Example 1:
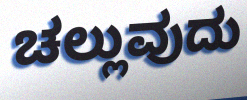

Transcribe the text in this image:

ಚಲ್ಲುವುದು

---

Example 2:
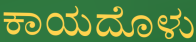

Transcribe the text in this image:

ಕಾಯದೊಳು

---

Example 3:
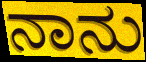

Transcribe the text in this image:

ನಾನು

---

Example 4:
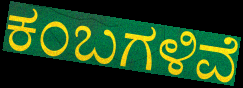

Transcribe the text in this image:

ಕಂಬಗಳಿವೆ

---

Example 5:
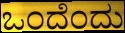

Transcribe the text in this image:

ಒಂದೆಂದು